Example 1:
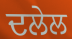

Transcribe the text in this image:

ਦਲੇਲ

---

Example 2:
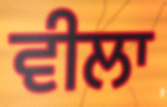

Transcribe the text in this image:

ਵੀਲਾ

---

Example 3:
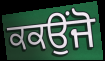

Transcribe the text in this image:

ਕਕਉਂਜੋ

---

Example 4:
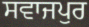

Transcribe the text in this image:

ਸਵਾਜਪੁਰ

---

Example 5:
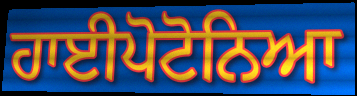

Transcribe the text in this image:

ਹਾਈਪੋਟੋਨਿਆ